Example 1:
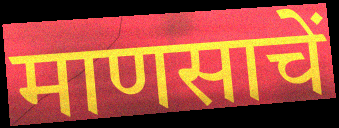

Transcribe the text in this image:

माणसाचें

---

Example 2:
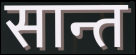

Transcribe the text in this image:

सान्त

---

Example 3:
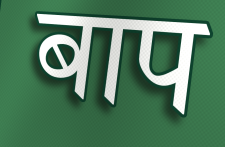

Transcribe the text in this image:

बाप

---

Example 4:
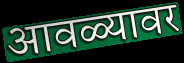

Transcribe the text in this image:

आवळ्यावर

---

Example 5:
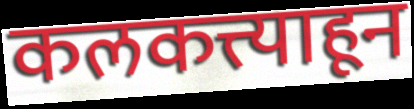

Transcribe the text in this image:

कलकत्त्याहून